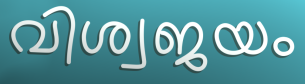
വിശ്വജയം